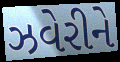
ઝવેરીને